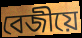
বেজীয়ে